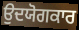
ਉਦਯੋਗਕਾਰ